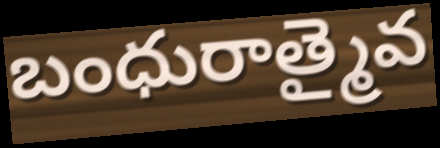
బంధురాత్మైవ